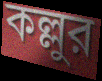
কল্লুর